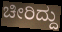
ಚೀರಿದ್ದು